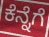
ಕೆನ್ನೆಗೆ